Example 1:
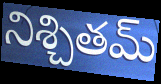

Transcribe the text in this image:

నిశ్చితమ్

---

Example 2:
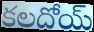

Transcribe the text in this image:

కలదోయ్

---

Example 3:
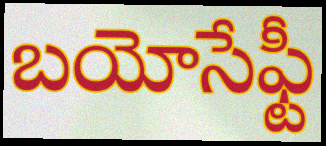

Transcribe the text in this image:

బయోసేఫ్టీ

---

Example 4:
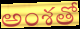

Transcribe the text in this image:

అంశతో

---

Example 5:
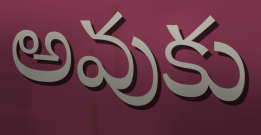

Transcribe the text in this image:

అవుకు